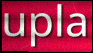
upla